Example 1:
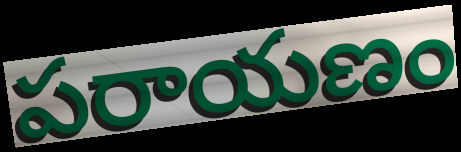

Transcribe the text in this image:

పరాయణం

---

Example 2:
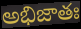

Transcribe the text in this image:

అభిజాతః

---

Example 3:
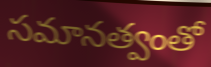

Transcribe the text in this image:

సమానత్వంతో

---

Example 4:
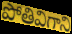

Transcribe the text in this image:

పోతివిగాని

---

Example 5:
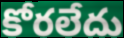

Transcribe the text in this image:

కోరలేదు